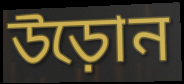
উড়োন